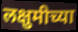
लक्षुमीच्या